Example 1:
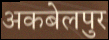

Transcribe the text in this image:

अकबेलपुर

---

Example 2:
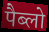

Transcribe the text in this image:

पैब्लो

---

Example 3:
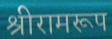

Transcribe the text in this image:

श्रीरामरूप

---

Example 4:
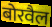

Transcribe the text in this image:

बोरवैल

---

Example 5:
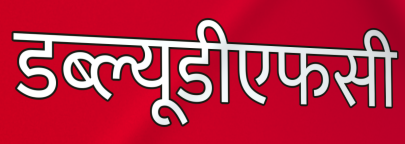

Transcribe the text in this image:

डब्ल्यूडीएफसी